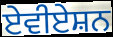
ਏਵੀਏਸ਼ਨ